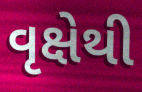
વૃક્ષેથી